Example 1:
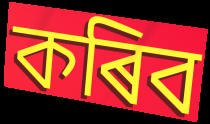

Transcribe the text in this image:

কৰিব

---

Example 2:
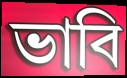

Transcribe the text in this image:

ভাবি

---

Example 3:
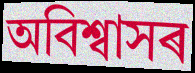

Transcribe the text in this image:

অবিশ্বাসৰ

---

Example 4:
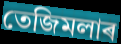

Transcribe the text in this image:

তেজিমলাৰ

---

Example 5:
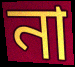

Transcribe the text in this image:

না